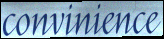
convinience